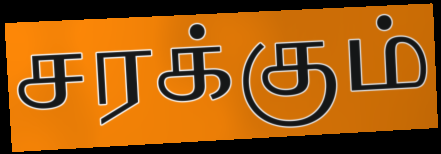
சரக்கும்